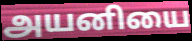
அயனியை